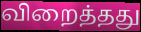
விறைத்தது